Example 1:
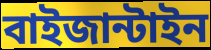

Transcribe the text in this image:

বাইজান্টাইন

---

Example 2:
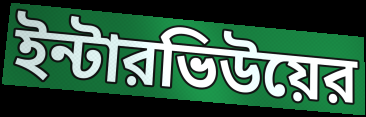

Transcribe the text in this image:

ইন্টারভিউয়ের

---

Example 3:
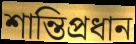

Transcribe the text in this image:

শান্তিপ্রধান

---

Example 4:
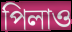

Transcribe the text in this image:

পিলাও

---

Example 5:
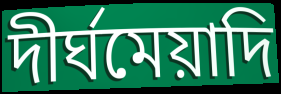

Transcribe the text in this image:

দীর্ঘমেয়াদি